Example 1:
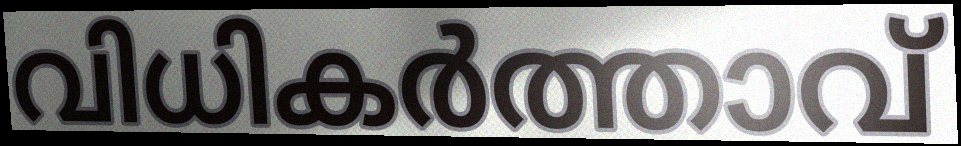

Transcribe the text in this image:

വിധികർത്താവ്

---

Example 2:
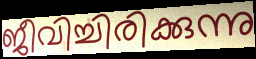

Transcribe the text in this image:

ജീവിച്ചിരിക്കുന്നു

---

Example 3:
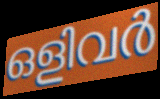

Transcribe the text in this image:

ഒളിവർ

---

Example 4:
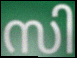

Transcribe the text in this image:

സി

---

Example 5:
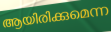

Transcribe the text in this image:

ആയിരിക്കുമെന്ന